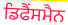
ਡਿਫੈਂਸਮੈਨ